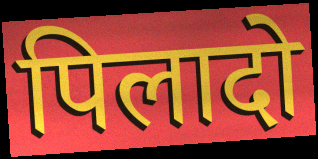
पिलादो